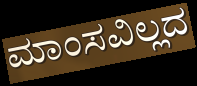
ಮಾಂಸವಿಲ್ಲದ